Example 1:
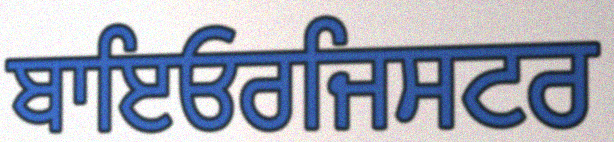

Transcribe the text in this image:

ਬਾਇਓਰਜਿਸਟਰ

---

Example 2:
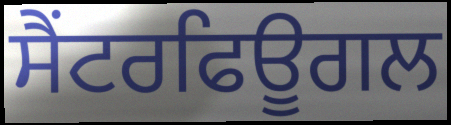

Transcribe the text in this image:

ਸੈਂਟਰਫਿਊਗਲ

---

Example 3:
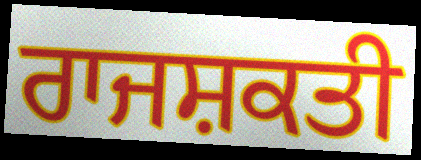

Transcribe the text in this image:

ਰਾਜਸ਼ਕਤੀ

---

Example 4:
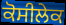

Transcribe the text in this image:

ਕੋਸੀਲੇਕ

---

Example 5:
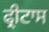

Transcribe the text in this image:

ਫ੍ਰੀਟਾਸ